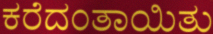
ಕರೆದಂತಾಯಿತು